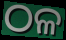
ଠଳ